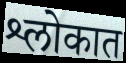
श्लोकात